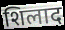
शिलाद